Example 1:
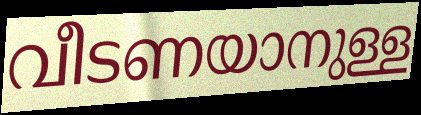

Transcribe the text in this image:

വീടണയാനുള്ള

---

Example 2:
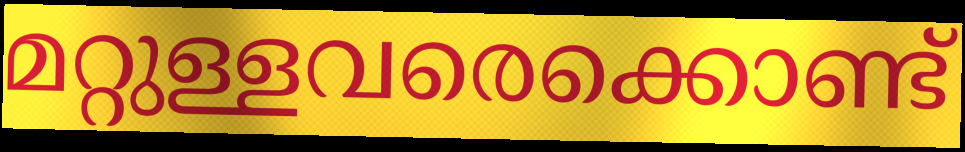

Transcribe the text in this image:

മറ്റുള്ളവരെക്കൊണ്ട്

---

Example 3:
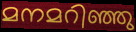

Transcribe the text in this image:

മനമറിഞ്ഞു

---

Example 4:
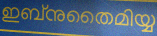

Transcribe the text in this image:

ഇബ്നുതൈമിയ്യ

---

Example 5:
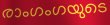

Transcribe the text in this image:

രാംഗംഗയുടെ